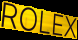
ROLEX